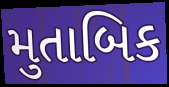
મુતાબિક